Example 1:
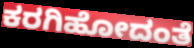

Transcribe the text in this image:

ಕರಗಿಹೋದಂತೆ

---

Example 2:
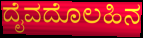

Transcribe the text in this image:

ದೈವದೊಲಹಿನ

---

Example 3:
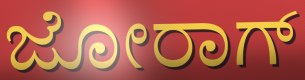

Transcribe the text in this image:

ಜೋರಾಗ್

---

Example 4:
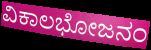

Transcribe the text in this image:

ವಿಕಾಲಭೋಜನಂ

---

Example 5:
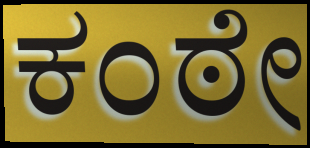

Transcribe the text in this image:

ಕಂಠೇ